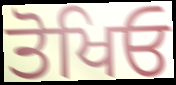
ਤੋਖਿਓ